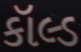
કૉલ્ડ